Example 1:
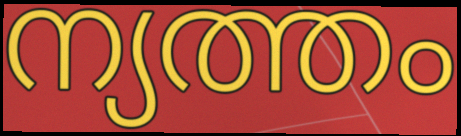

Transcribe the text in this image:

ന്യത്തം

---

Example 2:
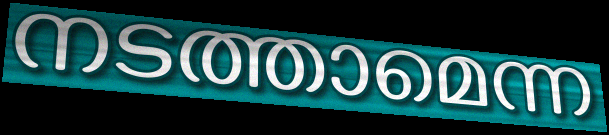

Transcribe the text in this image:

നടത്താമെന്ന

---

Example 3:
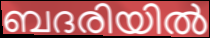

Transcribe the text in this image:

ബദരിയിൽ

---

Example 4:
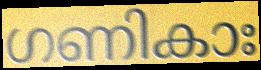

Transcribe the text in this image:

ഗണികാഃ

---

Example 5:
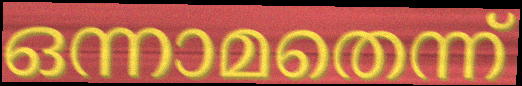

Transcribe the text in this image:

ഒന്നാമതെന്ന്